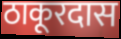
ठाकूरदास